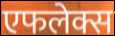
एफलेक्स